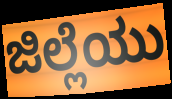
ಜಿಲ್ಲೆಯು